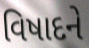
વિષાદને